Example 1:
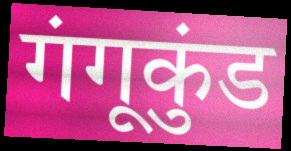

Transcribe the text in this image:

गंगूकुंड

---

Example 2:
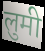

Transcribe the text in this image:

लुमी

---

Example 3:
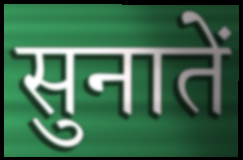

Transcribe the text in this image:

सुनातें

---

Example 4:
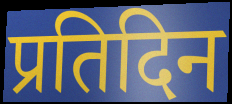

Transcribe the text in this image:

प्रतिदिन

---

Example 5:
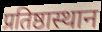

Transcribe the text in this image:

प्रतिष्ठास्थान